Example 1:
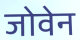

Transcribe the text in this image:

जोवेन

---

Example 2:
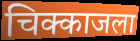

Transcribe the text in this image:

चिक्काजला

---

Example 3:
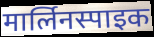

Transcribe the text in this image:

मार्लिनस्पाइक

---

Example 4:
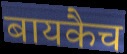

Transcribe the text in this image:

बायकैच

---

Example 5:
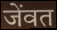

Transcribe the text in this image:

जेंवत